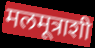
मलमूत्राशी